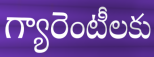
గ్యారెంటీలకు